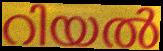
റിയൽ